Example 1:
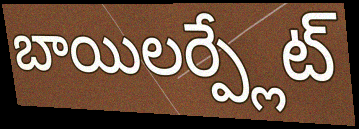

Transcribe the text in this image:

బాయిలర్ప్లేట్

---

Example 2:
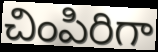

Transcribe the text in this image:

చింపిరిగా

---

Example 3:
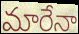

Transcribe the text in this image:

మారేనా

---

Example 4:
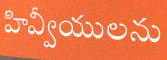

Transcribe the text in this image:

హివ్వీయులను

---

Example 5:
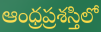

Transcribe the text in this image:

ఆంధ్రప్రశస్తిలో